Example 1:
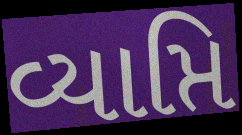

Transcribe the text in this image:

વ્યાપ્તિ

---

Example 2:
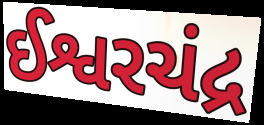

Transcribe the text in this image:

ઈશ્વરચંદ્ર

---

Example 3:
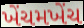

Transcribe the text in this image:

ખેંચમખેંચ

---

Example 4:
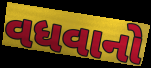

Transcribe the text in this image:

વધવાનો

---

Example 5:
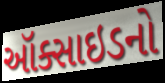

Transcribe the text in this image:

ઑક્સાઇડનો